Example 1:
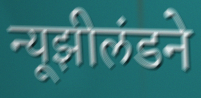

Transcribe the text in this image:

न्यूझीलंडने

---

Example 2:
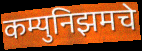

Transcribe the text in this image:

कम्युनिझमचे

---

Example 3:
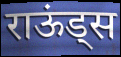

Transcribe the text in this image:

राऊंड्स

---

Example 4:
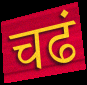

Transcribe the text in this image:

चढं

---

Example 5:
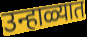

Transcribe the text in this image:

उन्हाळ्यात